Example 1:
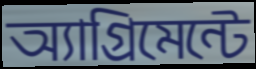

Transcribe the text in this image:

অ্যাগ্রিমেন্টে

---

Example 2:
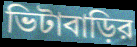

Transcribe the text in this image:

ভিটাবাড়ির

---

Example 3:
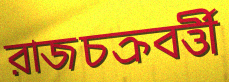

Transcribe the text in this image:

রাজচক্রবর্ত্তী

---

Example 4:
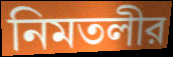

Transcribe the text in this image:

নিমতলীর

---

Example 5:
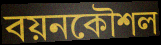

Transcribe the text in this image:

বয়নকৌশল